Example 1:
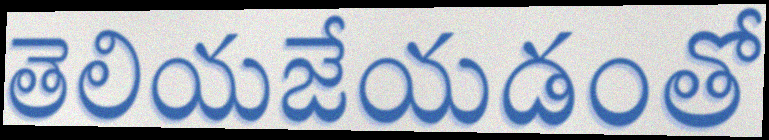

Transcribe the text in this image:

తెలియజేయడంతో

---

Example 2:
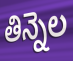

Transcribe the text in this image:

తిన్నెల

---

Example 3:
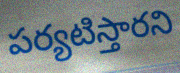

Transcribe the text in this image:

పర్యటిస్తారని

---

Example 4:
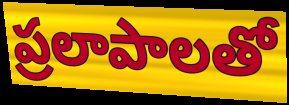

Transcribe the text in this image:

ప్రలాపాలతో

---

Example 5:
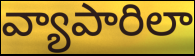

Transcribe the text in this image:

వ్యాపారిలా